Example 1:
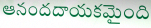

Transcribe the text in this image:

ఆనందదాయకమైంది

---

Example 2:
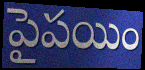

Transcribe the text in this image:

పైపయిం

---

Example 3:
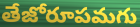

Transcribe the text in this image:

తేజోరూపమగు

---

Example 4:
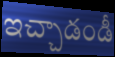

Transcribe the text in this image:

ఇచ్చాడండీ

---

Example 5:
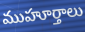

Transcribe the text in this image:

ముహూర్తాలు